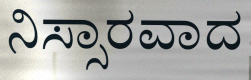
ನಿಸ್ಸಾರವಾದ